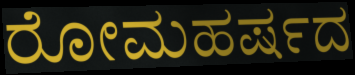
ರೋಮಹರ್ಷದ